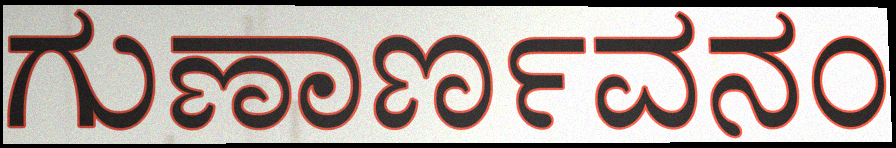
ಗುಣಾರ್ಣವನಂ